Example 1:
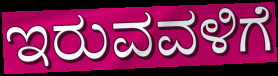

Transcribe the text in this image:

ಇರುವವಳಿಗೆ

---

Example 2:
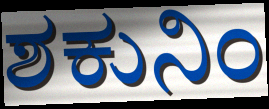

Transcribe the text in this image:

ಶಕುನಿಂ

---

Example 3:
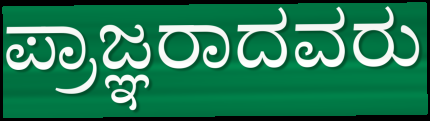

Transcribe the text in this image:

ಪ್ರಾಜ್ಞರಾದವರು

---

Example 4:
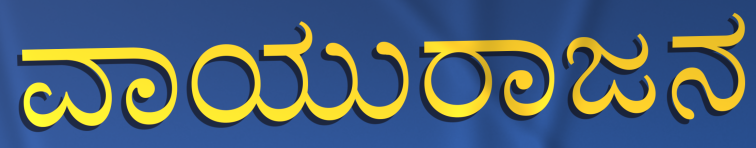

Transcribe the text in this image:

ವಾಯುರಾಜನ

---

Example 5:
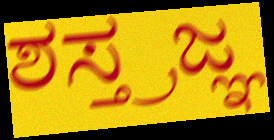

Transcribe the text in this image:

ಶಸ್ತ್ರಜ್ಞ